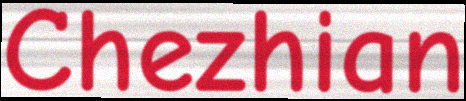
Chezhian